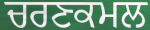
ਚਰਣਕਮਲ